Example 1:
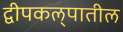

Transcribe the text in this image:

द्वीपकल्पातील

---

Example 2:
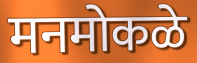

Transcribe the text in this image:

मनमोकळे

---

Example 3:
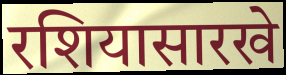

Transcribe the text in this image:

रशियासारखे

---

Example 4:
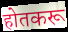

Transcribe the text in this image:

होतकरू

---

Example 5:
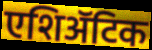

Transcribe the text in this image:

एशिॲटिक